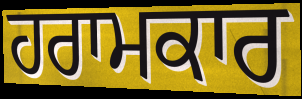
ਹਰਾਮਕਾਰ